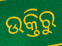
ଉକ୍ତିରୁ